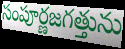
సంపూర్ణజగత్తును